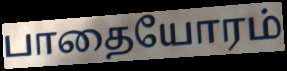
பாதையோரம்